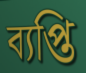
ব্যপ্তি